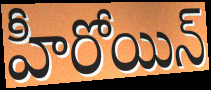
హీరోయిన్